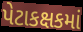
પેટાકક્ષકમાં